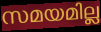
സമയമില്ല